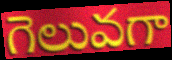
గెలువగా